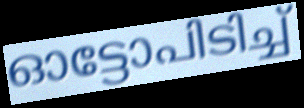
ഓട്ടോപിടിച്ച്